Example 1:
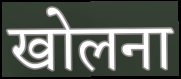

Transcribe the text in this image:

खोलना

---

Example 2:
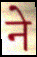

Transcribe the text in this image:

ने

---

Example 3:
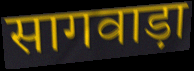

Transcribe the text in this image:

सागवाड़ा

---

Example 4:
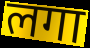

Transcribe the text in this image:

लगा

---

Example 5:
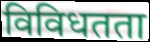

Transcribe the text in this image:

विविधतता